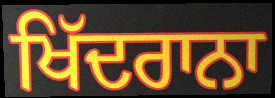
ਖਿੱਦਰਾਨਾ